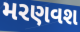
મરણવશ